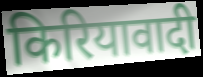
किरियावादी